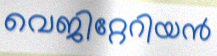
വെജിറ്റേറിയൻ